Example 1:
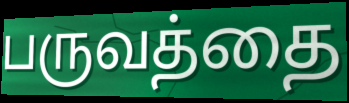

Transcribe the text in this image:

பருவத்தை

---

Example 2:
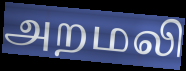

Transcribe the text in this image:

அறமலி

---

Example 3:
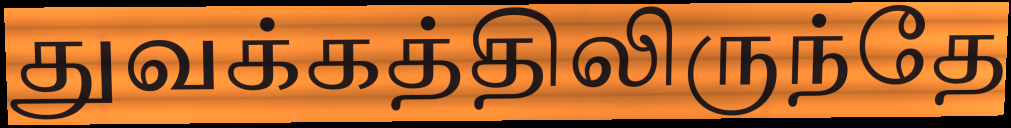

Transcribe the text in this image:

துவக்கத்திலிருந்தே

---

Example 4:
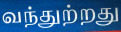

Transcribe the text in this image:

வந்துற்றது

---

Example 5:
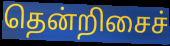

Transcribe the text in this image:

தென்றிசைச்